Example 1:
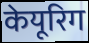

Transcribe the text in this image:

केयूरिग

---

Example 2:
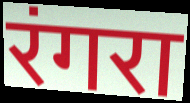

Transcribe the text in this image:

रंगरा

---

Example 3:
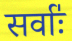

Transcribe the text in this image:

सर्वाः॑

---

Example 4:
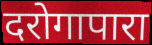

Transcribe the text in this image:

दरोगापारा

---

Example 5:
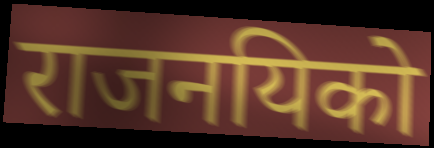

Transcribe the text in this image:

राजनयिको